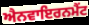
ਐਨਵਾਇਰਨਮੈਂਟ